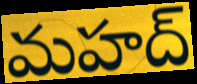
మహద్